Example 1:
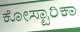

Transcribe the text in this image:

ಕೋಸ್ಟಾರಿಕಾ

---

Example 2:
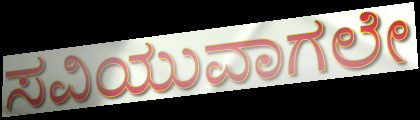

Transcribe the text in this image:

ಸವಿಯುವಾಗಲೇ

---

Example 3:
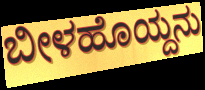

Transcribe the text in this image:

ಬೀಳಹೊಯ್ದನು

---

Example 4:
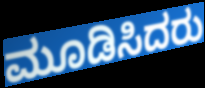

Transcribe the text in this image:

ಮೂಡಿಸಿದರು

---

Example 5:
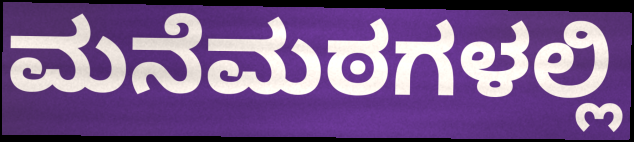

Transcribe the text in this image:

ಮನೆಮಠಗಳಲ್ಲಿ